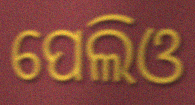
ପେଲିଓ